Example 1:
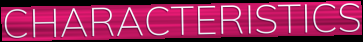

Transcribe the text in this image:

CHARACTERISTICS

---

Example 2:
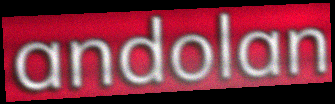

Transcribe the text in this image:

andolan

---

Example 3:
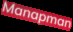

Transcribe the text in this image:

Manapman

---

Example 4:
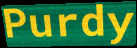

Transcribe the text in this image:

Purdy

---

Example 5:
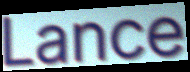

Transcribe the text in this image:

Lance